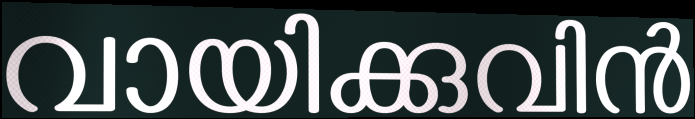
വായിക്കുവിൻ